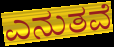
ಎನುತವೆ